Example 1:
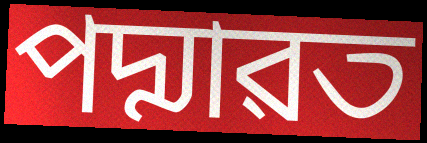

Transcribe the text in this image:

পদ্মাৱত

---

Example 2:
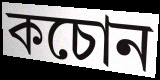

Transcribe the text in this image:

কচোন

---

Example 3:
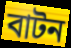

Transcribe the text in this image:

বাটন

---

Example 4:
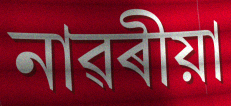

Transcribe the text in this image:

নাৱৰীয়া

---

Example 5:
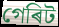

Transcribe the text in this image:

গেৰিট